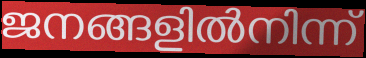
ജനങ്ങളിൽനിന്ന്